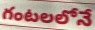
గంటలలోనే